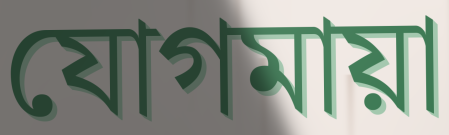
যোগমায়া